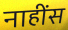
नाहींस